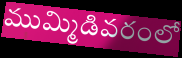
ముమ్మిడివరంలో